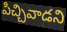
పిచ్చివాడని